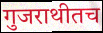
गुजराथीतच